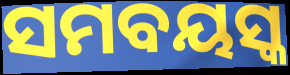
ସମବୟସ୍କ